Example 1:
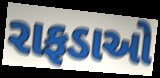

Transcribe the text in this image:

રાફડાઓ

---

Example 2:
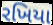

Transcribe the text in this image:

રખિયા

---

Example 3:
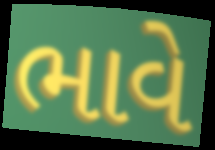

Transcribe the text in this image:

ભાવે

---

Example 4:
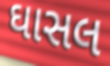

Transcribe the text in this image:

ઘાસલ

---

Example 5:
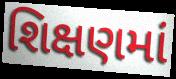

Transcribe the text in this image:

શિક્ષણમાં